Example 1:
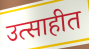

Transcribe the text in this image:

उत्साहीत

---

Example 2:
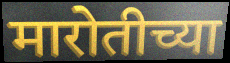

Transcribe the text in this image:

मारोतीच्या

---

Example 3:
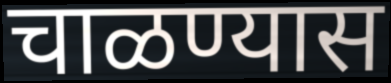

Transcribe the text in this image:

चाळण्यास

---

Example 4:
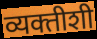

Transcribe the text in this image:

व्यक्‍तीशी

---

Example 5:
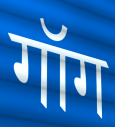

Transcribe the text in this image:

गॉग